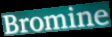
Bromine